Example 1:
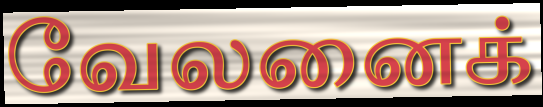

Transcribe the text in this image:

வேலனைக்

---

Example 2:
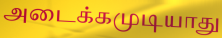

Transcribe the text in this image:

அடைக்கமுடியாது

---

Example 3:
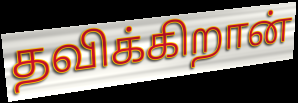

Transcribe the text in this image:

தவிக்கிறான்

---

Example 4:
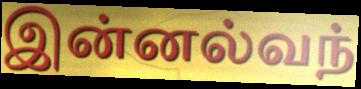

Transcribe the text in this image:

இன்னல்வந்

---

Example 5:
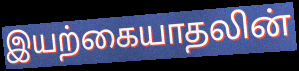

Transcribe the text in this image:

இயற்கையாதலின்